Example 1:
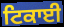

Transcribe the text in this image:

ਟਿਕਾਈ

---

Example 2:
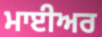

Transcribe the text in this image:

ਮਾਈਅਰ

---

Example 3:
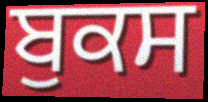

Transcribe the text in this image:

ਬੁਕਸ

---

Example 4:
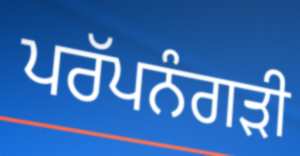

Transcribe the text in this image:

ਪਰੱਪਨੰਗੜੀ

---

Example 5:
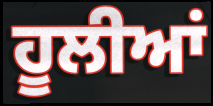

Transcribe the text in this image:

ਹੂਲੀਆਂ